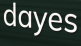
dayes